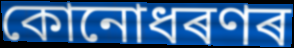
কোনোধৰণৰ